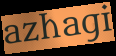
azhagi